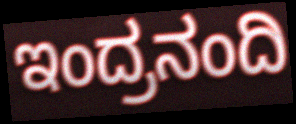
ಇಂದ್ರನಂದಿ